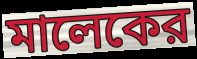
মালেকের